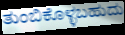
ತುಂಬಿಕೊಳ್ಳಬಹುದು